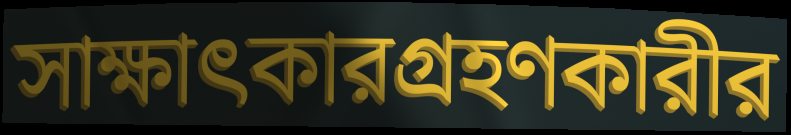
সাক্ষাৎকারগ্রহণকারীর